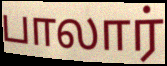
பாலார்